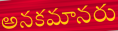
అనకమానరు